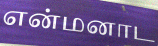
என்மனாட